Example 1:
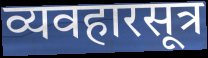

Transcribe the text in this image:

व्यवहारसूत्र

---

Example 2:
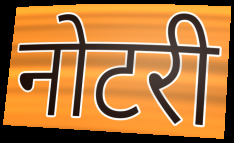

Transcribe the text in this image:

नोटरी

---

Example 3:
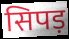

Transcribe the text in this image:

सिपड़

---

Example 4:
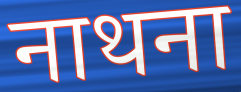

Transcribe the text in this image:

नाथना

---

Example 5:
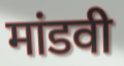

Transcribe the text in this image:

मांडवी